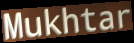
Mukhtar